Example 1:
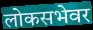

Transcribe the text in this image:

लोकसभेवर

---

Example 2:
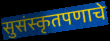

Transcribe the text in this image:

सुसंस्कृतपणाचे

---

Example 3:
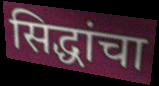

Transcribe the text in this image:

सिद्धांचा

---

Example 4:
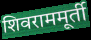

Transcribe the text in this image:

शिवराममूर्ती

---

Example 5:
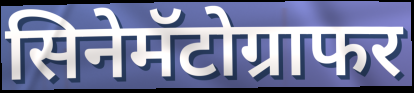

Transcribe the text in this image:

सिनेमॅटोग्राफर